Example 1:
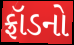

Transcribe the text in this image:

ફ્રૉડનો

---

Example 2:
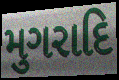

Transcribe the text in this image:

મુગરાદિ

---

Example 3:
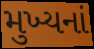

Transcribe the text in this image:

મુખ્યનાં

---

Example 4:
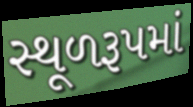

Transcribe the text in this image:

સ્થૂળરૂપમાં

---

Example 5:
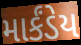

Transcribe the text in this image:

માર્કંડેય